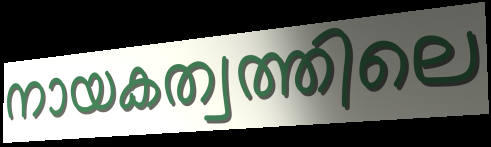
നായകത്വത്തിലെ